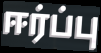
ஈர்ப்பு